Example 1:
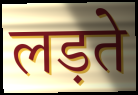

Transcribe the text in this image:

लड़ते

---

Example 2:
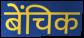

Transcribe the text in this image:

बेंचिक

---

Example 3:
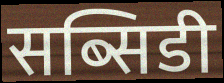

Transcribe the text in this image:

सब्सिडी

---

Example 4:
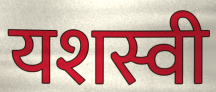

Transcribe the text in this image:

यशस्‍वी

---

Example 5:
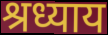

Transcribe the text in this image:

श्रध्याय